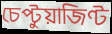
চেপ্টুয়াজিণ্ট